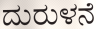
ದುರುಳನೆ